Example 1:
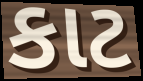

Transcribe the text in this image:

કાટ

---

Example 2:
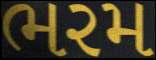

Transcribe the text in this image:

ભરમ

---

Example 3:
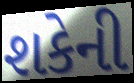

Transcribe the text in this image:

શકેની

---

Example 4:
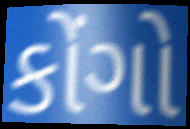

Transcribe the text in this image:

કોંગો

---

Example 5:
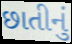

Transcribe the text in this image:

છાતીનું